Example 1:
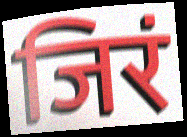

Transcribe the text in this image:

जिरं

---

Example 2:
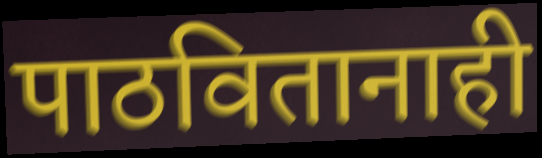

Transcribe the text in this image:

पाठवितानाही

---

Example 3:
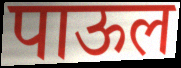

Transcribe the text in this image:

पाऊल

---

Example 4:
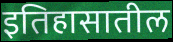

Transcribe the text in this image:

इतिहासातील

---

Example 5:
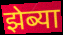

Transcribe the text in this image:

झेब्या